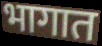
भागात